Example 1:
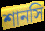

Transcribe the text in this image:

শানসি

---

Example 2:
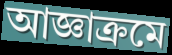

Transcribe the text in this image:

আজ্ঞাক্রমে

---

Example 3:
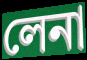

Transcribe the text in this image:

লেনা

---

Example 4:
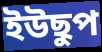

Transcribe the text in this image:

ইউছুপ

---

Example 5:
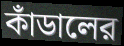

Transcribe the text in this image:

কাঁডালের